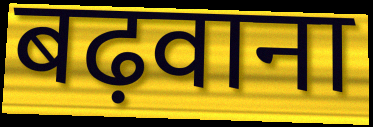
बढ़वाना